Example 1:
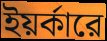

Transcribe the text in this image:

ইয়র্কারে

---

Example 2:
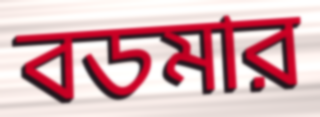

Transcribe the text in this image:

বডমার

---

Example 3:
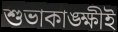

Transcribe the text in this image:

শুভাকাঙ্ক্ষীই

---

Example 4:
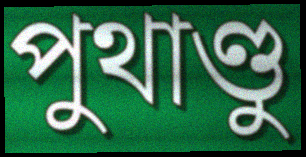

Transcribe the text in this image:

পুথাণ্ডু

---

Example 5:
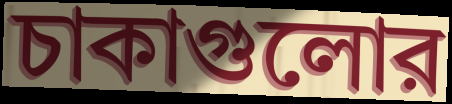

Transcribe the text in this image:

চাকাগুলোর